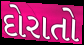
દોરાતો